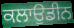
ਕਲਾਉਡੀਨ